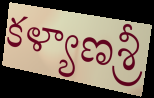
కళ్యాణశ్రీ